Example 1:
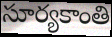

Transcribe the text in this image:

సూర్యకాంతి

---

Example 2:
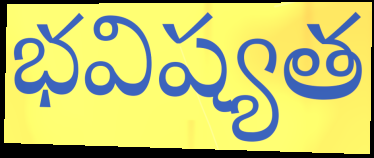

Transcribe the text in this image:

భవిష్యత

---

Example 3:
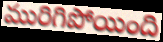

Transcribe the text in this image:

మురిగిపోయింది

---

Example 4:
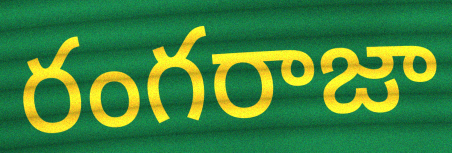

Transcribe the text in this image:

రంగరాజా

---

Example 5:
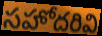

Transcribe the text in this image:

సహోదరివి